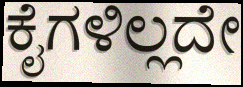
ಕೈಗಳಿಲ್ಲದೇ